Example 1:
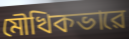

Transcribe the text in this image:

মৌখিকভাৱে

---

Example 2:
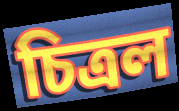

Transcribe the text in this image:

চিত্ৰল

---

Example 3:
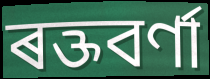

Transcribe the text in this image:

ৰক্তবৰ্ণা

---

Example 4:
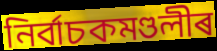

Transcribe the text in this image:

নিৰ্বাচকমণ্ডলীৰ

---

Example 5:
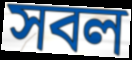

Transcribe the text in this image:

সবল